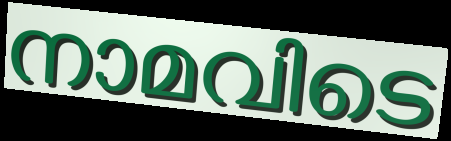
നാമവിടെ